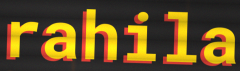
rahila